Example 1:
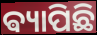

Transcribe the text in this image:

ଵ୍ୟାପିଛି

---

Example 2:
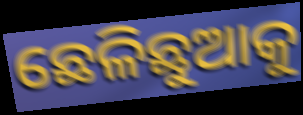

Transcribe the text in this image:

ଛେଳିଛୁଆକୁ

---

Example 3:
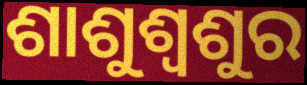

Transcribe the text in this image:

ଶାଶୁଶ୍ୱଶୁର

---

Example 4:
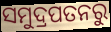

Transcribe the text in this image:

ସମୁଦ୍ରପତନରୁ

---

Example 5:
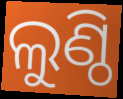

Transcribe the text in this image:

ଲୁଣ୍ଠି